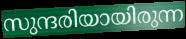
സുന്ദരിയായിരുന്ന